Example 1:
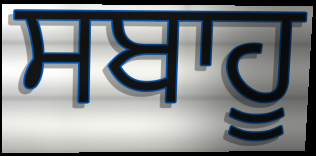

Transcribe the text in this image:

ਸਬਾਹੂ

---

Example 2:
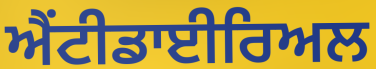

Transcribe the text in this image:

ਐਂਟੀਡਾਈਰਿਅਲ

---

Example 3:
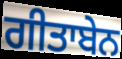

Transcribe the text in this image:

ਗੀਤਾਬੇਨ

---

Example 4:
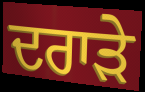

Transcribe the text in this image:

ਦਰਾੜੇ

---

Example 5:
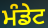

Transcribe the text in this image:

ਮੰਡੇਟ